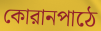
কোরানপাঠে